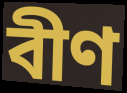
বীণ